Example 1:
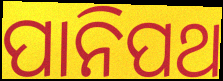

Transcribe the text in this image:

ପାନିପଥ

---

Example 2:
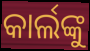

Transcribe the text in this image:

କାର୍ଲଙ୍କୁ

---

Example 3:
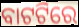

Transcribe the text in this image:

ବାଟଟିରେ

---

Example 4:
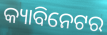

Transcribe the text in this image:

କ୍ୟାବିନେଟର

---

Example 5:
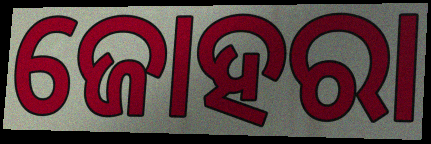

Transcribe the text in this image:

ଜୋହରା